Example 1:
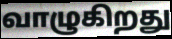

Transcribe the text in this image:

வாழுகிறது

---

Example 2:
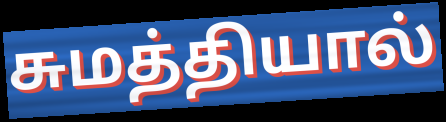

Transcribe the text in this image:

சுமத்தியால்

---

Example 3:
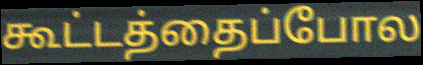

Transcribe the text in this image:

கூட்டத்தைப்போல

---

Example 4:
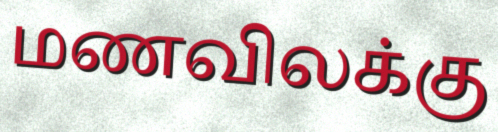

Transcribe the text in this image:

மணவிலக்கு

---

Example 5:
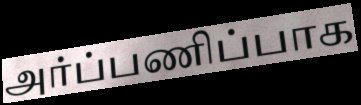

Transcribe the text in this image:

அர்ப்பணிப்பாக